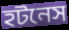
হটনেস